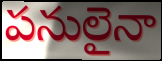
పనులైనా